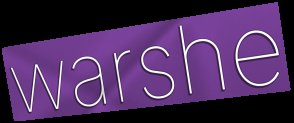
warshe